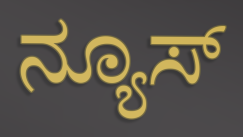
ನ್ಯೂಸ್